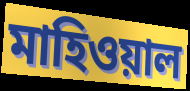
মাহিওয়াল